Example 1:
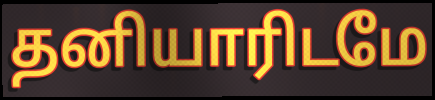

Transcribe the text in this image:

தனியாரிடமே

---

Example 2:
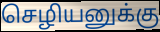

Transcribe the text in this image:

செழியனுக்கு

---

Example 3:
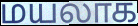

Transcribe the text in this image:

மயலாக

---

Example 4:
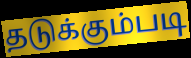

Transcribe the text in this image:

தடுக்கும்படி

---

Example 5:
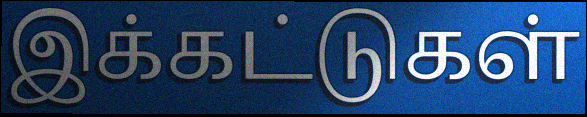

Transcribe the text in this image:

இக்கட்டுகள்